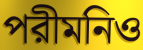
পরীমনিও